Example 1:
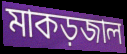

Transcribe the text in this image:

মাকড়জাল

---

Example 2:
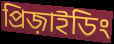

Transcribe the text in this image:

প্রিজ়াইডিং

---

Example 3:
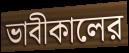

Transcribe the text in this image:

ভাবীকালের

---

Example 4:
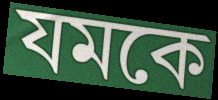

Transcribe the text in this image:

যমকে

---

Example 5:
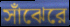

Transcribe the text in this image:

সাঁঝেরে